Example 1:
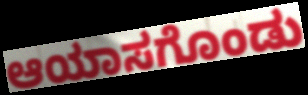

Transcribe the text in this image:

ಆಯಾಸಗೊಂಡು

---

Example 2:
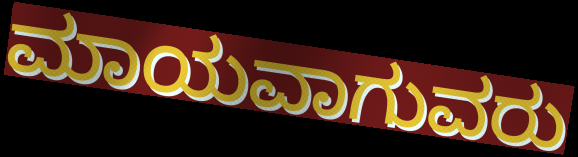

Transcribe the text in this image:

ಮಾಯವಾಗುವರು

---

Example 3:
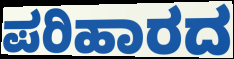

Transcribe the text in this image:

ಪರಿಹಾರದ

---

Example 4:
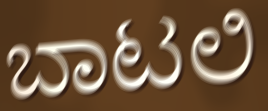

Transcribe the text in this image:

ಬಾಟಲಿ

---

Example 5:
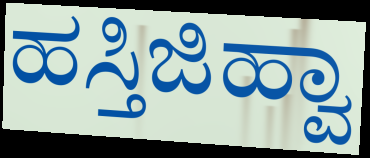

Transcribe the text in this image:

ಹಸ್ತಿಜಿಹ್ವಾ